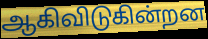
ஆகிவிடுகின்றன